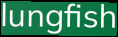
lungfish